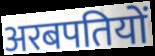
अरबपतियों